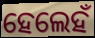
ହେଲେହଁ